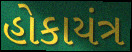
હોકાયંત્ર